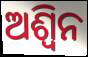
ଅଶ୍ଵିନ